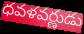
ధవళవర్ణుడు